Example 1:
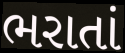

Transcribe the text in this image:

ભરાતાં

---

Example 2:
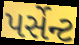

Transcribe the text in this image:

પર્સેન્ટ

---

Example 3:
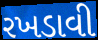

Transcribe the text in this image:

રખડાવી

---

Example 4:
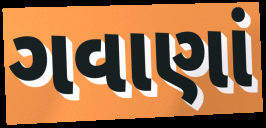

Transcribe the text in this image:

ગવાણાં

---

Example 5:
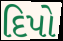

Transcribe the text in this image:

દિપો